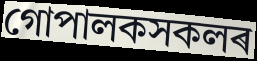
গোপালকসকলৰ